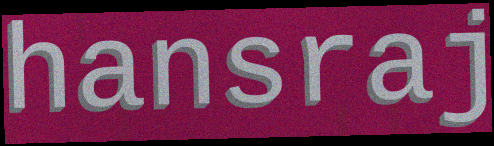
hansraj